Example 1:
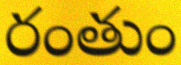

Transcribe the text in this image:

రంతుం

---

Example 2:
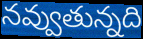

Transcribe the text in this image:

నవ్వుతున్నది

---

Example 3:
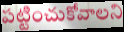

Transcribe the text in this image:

పట్టించుకోవాలని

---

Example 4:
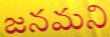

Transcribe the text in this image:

జనమని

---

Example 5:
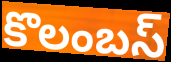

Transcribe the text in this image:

కొలంబస్